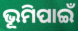
ଭୂମିପାଇଁ